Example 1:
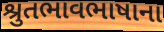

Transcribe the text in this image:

શ્રુતભાવભાષાના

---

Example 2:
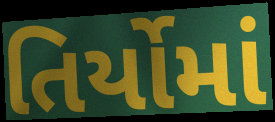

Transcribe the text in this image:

તિર્યોમાં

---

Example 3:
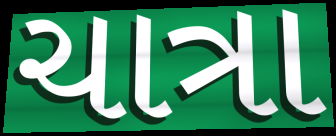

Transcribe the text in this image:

ચાત્રા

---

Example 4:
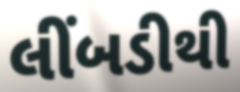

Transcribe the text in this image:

લીંબડીથી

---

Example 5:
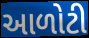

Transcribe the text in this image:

આળોટી